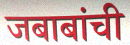
जबाबांची